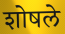
शोषले